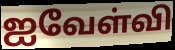
ஐவேள்வி